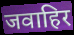
जवाहिर